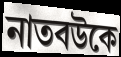
নাতবউকে